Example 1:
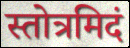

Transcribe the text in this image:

स्तोत्रमिदं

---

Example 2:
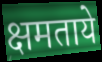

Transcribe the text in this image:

क्षमताये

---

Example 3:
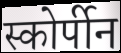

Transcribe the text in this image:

स्कोर्पीन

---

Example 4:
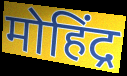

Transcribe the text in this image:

मोहिंद्र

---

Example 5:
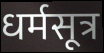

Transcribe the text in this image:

धर्मसूत्र